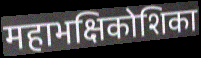
महाभक्षिकोशिका